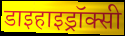
डाइहाइड्रॉक्सी